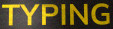
TYPING